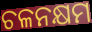
ଚଳନକ୍ଷମ